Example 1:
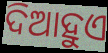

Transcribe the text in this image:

ଦିଆହୁଏ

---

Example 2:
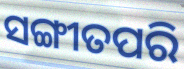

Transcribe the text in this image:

ସଙ୍ଗୀତପରି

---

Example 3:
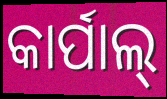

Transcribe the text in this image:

କାର୍ପାଲ୍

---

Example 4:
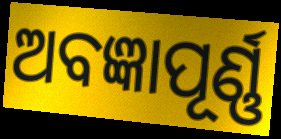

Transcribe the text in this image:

ଅବଜ୍ଞାପୂର୍ଣ୍ଣ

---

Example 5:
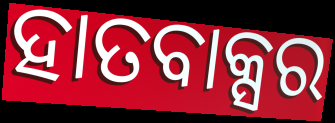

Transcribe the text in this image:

ହାତବାକ୍ସର